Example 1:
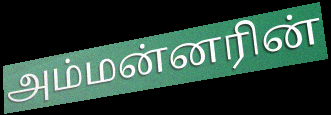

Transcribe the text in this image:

அம்மன்னரின்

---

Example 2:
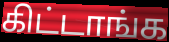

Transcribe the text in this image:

கிட்டாங்க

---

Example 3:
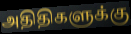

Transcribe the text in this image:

அதிதிகளுக்கு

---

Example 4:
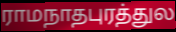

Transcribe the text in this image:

ராமநாதபுரத்துல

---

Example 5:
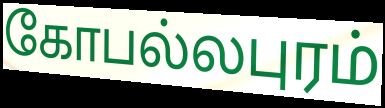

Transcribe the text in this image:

கோபல்லபுரம்